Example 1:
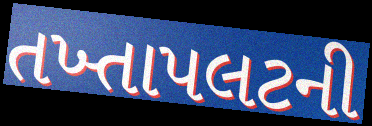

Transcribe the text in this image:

તખ્તાપલટની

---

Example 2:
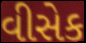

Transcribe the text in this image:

વીસેક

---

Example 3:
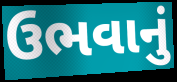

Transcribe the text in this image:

ઉભવાનું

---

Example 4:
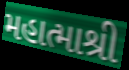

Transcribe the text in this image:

મહાત્માશ્રી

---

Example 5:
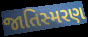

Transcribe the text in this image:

જાતિસ્મરણ